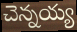
చెన్నయ్య